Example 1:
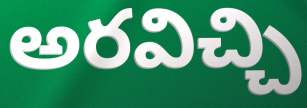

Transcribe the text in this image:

అరవిచ్చి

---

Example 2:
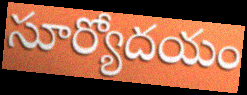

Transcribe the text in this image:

సూర్యోదయం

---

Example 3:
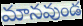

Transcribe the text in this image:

మానవుండ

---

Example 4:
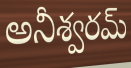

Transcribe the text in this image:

అనీశ్వరమ్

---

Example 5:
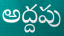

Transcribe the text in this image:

అద్దపు